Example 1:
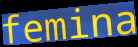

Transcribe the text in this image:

femina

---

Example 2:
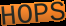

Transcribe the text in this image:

HOPS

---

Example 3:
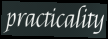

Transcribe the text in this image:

practicality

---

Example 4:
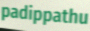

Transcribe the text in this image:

padippathu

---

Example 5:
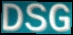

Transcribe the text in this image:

DSG